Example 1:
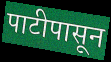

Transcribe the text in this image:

पाटीपासून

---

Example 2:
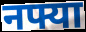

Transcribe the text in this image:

नफ्या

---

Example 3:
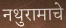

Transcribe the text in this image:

नथुरामाचे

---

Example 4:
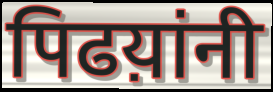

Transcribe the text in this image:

पिढय़ांनी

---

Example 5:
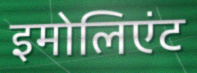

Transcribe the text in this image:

इमोलिएंट